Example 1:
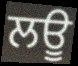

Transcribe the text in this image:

ਲਊ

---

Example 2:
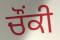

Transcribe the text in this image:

ਚੌਂਕੀ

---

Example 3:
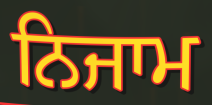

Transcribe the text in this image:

ਨਿਜਾਮ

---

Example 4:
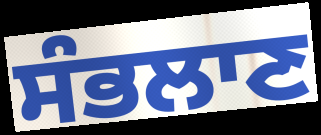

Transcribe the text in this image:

ਸੰਭਲਾਣ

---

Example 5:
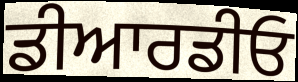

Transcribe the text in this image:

ਡੀਆਰਡੀਓ